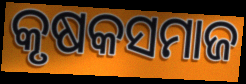
କୃଷକସମାଜ